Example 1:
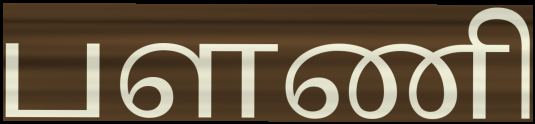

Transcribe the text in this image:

பளணி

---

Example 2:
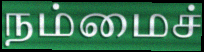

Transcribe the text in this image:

நம்மைச்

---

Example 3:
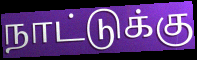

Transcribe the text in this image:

நாட்டுக்கு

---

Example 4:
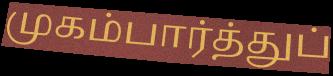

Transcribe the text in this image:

முகம்பார்த்துப்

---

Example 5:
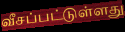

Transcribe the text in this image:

வீசப்பட்டுள்ளது